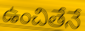
ఉంచితేనే